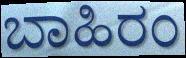
ಬಾಹಿರಂ